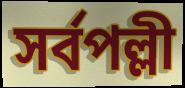
সৰ্বপল্লী